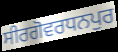
ਸੀਰਗੋਵਰਧਨਪੁਰ